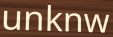
unknw